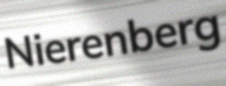
Nierenberg